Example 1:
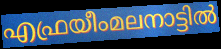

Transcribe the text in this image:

എഫ്രയീംമലനാട്ടിൽ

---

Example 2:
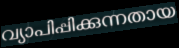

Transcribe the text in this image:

വ്യാപിപ്പിക്കുന്നതായ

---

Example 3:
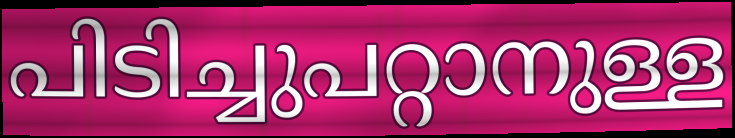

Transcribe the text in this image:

പിടിച്ചുപറ്റാനുള്ള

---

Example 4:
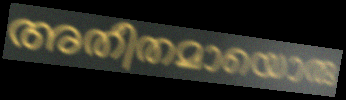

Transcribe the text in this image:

അതീതമായൊരു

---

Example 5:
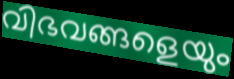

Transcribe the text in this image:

വിഭവങ്ങളെയും